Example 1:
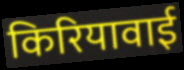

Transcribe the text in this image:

किरियावाई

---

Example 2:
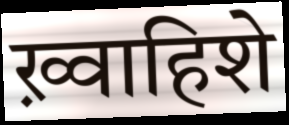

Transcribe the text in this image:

ख़्वाहिशे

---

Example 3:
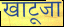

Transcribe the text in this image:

खाटूजा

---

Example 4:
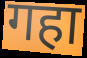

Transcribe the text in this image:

गहा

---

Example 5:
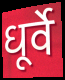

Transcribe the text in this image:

धूर्वे